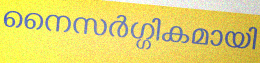
നൈസർഗ്ഗികമായി